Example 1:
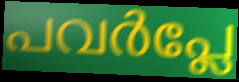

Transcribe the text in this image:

പവർപ്ലേ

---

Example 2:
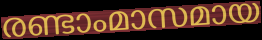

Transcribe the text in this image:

രണ്ടാംമാസമായ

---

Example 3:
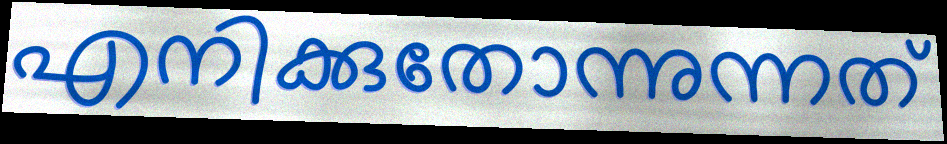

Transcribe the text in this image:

എനിക്കുതോന്നുന്നത്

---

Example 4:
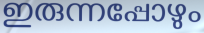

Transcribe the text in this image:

ഇരുന്നപ്പോഴും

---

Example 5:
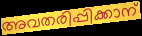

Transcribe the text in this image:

അവതരിപ്പിക്കാന്